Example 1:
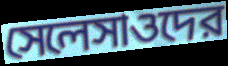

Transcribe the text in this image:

সেলেসাওদের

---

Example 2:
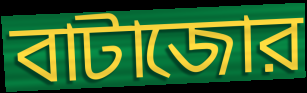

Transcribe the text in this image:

বাটাজোর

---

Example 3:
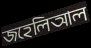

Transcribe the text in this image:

জহেলিআল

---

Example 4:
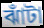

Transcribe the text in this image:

ঝাঁটা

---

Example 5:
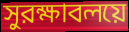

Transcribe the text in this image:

সুরক্ষাবলয়ে